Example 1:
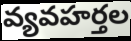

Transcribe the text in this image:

వ్యవహర్తల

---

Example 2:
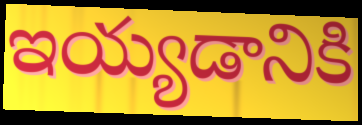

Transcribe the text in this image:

ఇయ్యడానికి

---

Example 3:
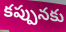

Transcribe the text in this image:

కప్పునకు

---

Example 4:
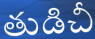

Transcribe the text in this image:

తుడిచీ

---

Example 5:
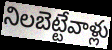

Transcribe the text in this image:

నిలబెట్టేవాళ్లు